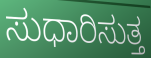
ಸುಧಾರಿಸುತ್ತ